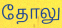
தோலு